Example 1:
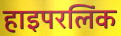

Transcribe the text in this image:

हाइपरलिंक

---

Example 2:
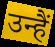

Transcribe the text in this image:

उन्‍हैं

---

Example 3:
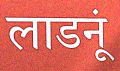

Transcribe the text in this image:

लाडनूं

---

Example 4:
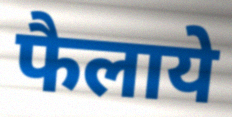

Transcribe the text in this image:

फैलाये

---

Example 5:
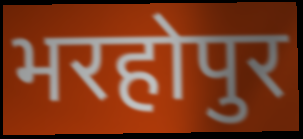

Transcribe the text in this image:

भरहोपुर